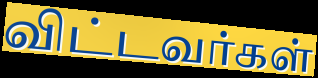
விட்டவர்கள்